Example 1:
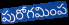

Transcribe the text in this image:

పురోగమింప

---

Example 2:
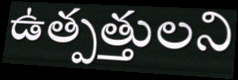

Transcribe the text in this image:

ఉత్పత్తులని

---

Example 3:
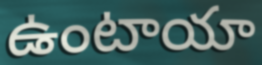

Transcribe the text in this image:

ఉంటాయా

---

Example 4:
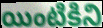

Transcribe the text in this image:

యింటికిని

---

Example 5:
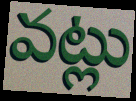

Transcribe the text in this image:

వట్లు